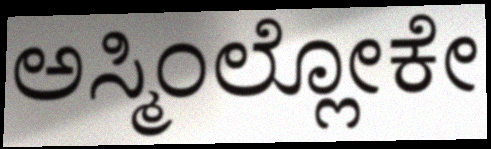
ಅಸ್ಮಿಂಲ್ಲೋಕೇ